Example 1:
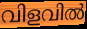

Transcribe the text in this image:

വിളവിൽ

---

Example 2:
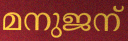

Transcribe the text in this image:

മനുജന്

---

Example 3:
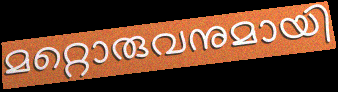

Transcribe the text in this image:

മറ്റൊരുവനുമായി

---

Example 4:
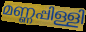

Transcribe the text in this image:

മണ്ണപ്പിള്ളി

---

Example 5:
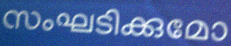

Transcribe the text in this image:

സംഘടിക്കുമോ